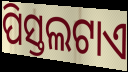
ପିସ୍ତଲଟାଏ